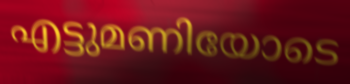
എട്ടുമണിയോടെ